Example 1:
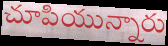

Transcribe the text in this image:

చూపియున్నారు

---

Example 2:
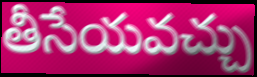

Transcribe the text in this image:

తీసేయవచ్చు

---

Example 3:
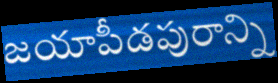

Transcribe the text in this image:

జయాపీడపురాన్ని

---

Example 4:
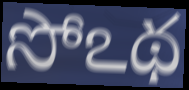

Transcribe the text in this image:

సోఽథ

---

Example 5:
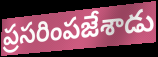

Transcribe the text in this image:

ప్రసరింపజేశాడు